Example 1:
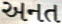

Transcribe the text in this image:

અનત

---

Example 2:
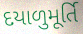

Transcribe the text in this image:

દયાળુમૂર્તિ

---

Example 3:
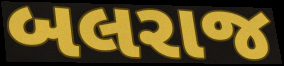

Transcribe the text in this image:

બલરાજ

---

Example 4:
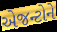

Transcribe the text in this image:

એજન્ટોને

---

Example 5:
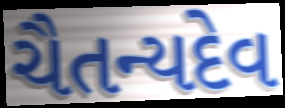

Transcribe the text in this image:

ચૈતન્યદેવ